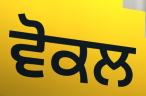
ਵੋਕਲ